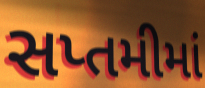
સપ્તમીમાં